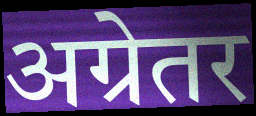
अग्रेतर